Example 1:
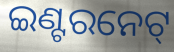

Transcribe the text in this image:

ଇଣ୍ଟରନେଟ୍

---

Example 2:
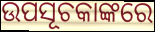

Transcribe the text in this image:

ଉପସୂଚକାଙ୍କରେ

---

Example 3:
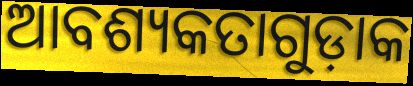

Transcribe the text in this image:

ଆବଶ୍ୟକତାଗୁଡ଼ାକ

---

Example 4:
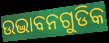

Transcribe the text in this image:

ଉଦ୍ଭାବନଗୁଡିକ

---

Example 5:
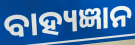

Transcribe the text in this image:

ବାହ୍ୟଜ୍ଞାନ